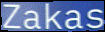
Zakas